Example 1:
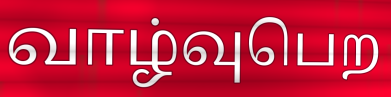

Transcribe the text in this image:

வாழ்வுபெற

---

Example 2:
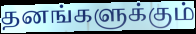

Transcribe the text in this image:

தனங்களுக்கும்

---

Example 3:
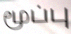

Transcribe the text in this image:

மூப்பு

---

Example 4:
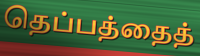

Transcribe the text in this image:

தெப்பத்தைத்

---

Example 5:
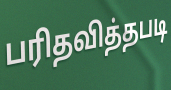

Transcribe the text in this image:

பரிதவித்தபடி